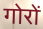
गोरों